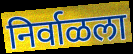
निर्वाळला